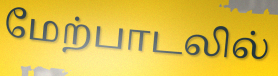
மேற்பாடலில்